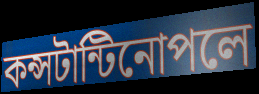
কন্সটান্টিনোপলে